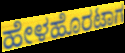
ಹೇಳಹೊರಟಾಗ